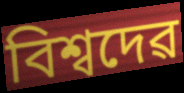
বিশ্বদেৱ